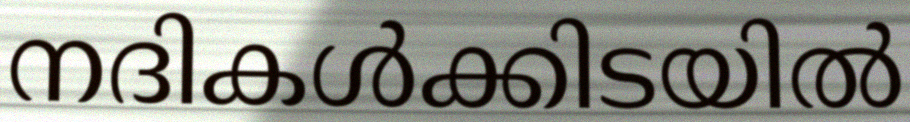
നദികൾക്കിടയിൽ